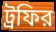
ট্রফির